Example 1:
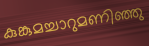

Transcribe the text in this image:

കുങ്കുമച്ചാറുമണിഞ്ഞു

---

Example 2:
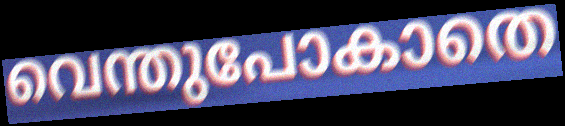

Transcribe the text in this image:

വെന്തുപോകാതെ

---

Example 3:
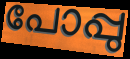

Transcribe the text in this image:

പോപ്പു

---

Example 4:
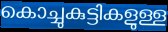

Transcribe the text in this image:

കൊച്ചുകുട്ടികളുള്ള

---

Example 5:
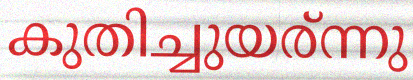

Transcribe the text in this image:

കുതിച്ചുയര്ന്നു